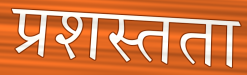
प्रशस्तता